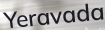
Yeravada